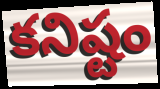
కనిష్టం